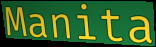
Manita